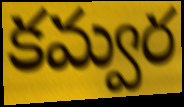
కమ్వర